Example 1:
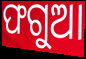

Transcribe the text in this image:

ଫଗୁଆ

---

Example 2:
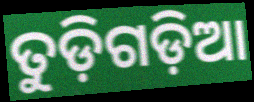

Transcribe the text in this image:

ତୁଡ଼ିଗଡ଼ିଆ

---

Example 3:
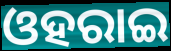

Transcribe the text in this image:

ଓହରାଇ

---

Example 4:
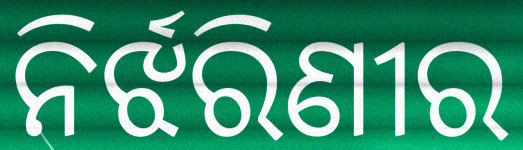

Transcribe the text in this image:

ନିର୍ଝରିଣୀର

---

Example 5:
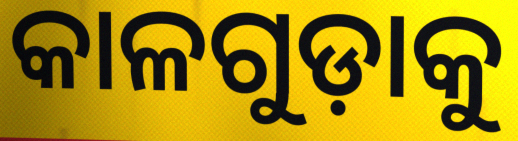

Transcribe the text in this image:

କାଳଗୁଡ଼ାକୁ